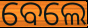
ବେଲେ